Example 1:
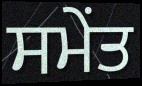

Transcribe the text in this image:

ਸਮੇਂਤ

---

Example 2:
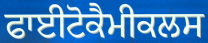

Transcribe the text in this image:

ਫਾਈਟੋਕੈਮੀਕਲਸ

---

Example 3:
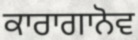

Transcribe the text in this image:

ਕਾਰਾਗਾਨੋਵ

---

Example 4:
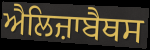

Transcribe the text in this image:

ਐਲਿਜ਼ਾਬੈਥਸ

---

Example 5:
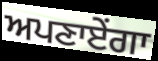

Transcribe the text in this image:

ਅਪਣਾਏਂਗਾ